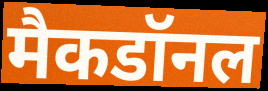
मैकडॉनल